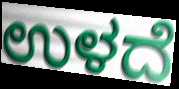
ಉಳದೆ